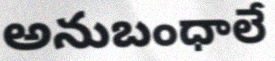
అనుబంధాలే